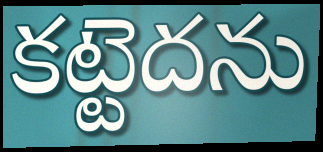
కట్టెదను